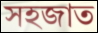
সহজাত